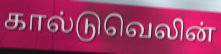
கால்டுவெலின்